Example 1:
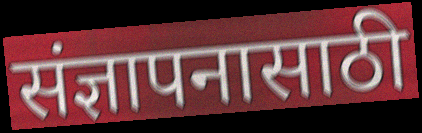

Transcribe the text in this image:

संज्ञापनासाठी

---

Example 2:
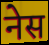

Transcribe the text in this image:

नेस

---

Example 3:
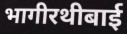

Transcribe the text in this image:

भागीरथीबाई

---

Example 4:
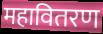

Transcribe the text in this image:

महावितरण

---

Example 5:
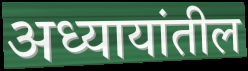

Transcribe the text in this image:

अध्यायांतील